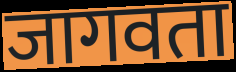
जागवता